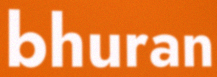
bhuran